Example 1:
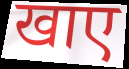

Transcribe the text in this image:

खाए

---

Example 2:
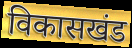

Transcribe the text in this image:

विकासखंड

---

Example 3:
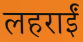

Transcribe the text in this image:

लहराईं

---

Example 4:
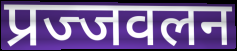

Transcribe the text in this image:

प्रज्जवलन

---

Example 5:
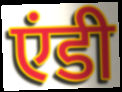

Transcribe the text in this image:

एंडी